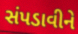
સંપડાવીને